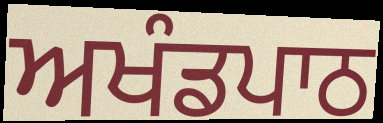
ਅਖੰਡਪਾਠ